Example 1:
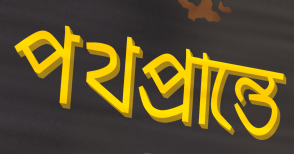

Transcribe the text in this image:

পথপ্রান্তে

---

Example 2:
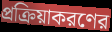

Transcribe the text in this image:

প্রক্রিয়াকরণের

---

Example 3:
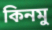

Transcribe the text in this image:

কিনমু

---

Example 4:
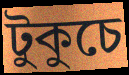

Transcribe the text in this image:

টুকুচে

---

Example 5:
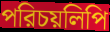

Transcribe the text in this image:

পরিচয়লিপি